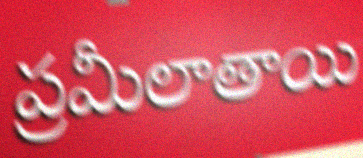
ప్రమీలాతాయి